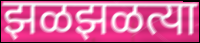
झळझळत्या